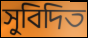
সুবিদিত